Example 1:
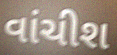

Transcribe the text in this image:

વાંચીશ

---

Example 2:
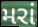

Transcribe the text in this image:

મરાં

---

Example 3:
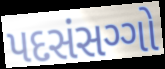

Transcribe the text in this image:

પદસંસગ્ગો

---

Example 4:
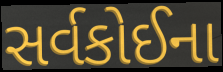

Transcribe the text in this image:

સર્વકોઈના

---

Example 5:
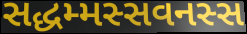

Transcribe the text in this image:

સદ્ધમ્મસ્સવનસ્સ